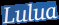
Lulua